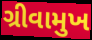
ગ્રીવામુખ